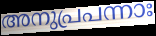
അനുപ്രപന്നാഃ